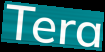
Tera